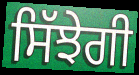
ਸਿੱਝੇਗੀ